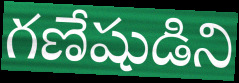
గణేషుడిని